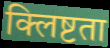
क्‍लिष्टता